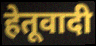
हेतूवादी